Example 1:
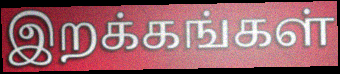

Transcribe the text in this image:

இறக்கங்கள்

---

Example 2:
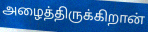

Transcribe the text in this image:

அழைத்திருக்கிறான்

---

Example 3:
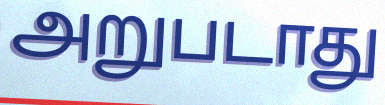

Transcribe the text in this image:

அறுபடாது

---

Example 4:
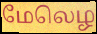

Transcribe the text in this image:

மேலெழ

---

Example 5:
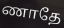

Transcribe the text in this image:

ணாதே